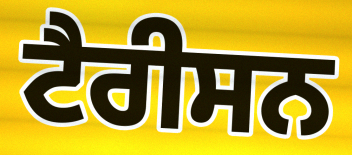
ਟੈਰੀਸਨ